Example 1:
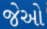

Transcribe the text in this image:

જેઓ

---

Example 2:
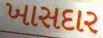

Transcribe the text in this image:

ખાસદાર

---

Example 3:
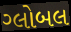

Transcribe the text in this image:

ગ્લોબલ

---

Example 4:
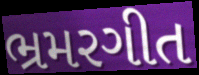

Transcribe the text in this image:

ભ્રમરગીત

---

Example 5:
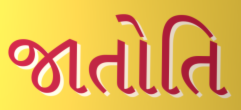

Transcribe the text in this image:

જાતોતિ